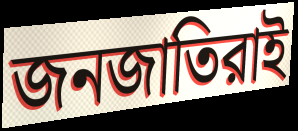
জনজাতিরাই